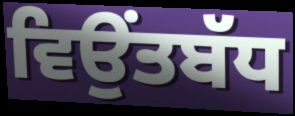
ਵਿਉਂਤਬੱਧ